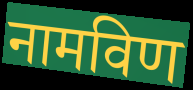
नामविण